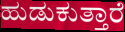
ಹುಡುಕುತ್ತಾರೆ